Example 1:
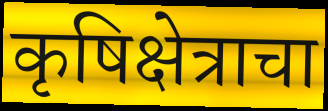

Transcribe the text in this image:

कृषिक्षेत्राचा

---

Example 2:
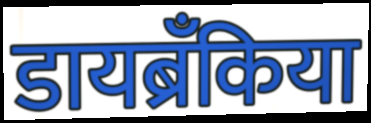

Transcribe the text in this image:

डायब्रँकिया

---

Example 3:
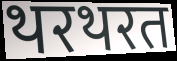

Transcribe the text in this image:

थरथरत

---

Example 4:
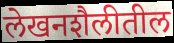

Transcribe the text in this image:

लेखनशैलीतील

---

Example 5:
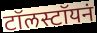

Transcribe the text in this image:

टॉलस्टॉयनं